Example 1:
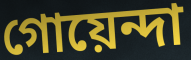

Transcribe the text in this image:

গোয়েন্দা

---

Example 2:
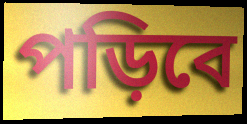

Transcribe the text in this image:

পড়িবে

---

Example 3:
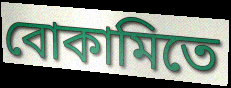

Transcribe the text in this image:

বোকামিতে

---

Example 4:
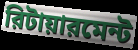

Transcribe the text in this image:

রিটায়ারমেন্ট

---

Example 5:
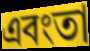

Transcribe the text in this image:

এবংতা